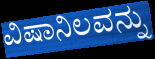
ವಿಷಾನಿಲವನ್ನು